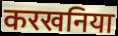
करखनिया